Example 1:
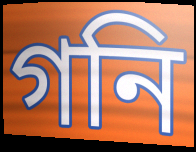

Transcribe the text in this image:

গনি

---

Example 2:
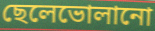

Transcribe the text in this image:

ছেলেভোলানো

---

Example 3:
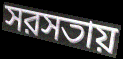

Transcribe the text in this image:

সরসতায়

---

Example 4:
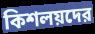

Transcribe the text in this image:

কিশলয়দের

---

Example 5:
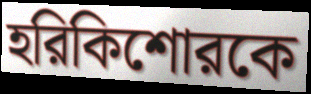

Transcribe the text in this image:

হরিকিশোরকে